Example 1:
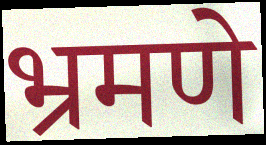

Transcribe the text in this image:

भ्रमणे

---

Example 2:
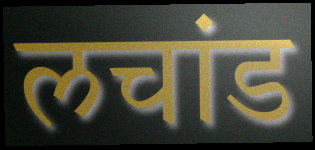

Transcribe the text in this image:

लचांड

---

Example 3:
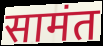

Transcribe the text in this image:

सामंत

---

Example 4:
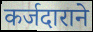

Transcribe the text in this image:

कर्जदाराने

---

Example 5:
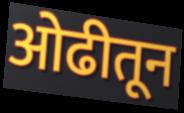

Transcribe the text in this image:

ओढीतून